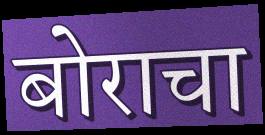
बोराचा